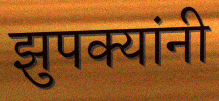
झुपक्यांनी